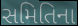
સમિતિના